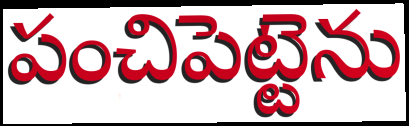
పంచిపెట్టెను